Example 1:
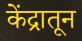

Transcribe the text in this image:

केंद्रातून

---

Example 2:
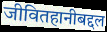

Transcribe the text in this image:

जीवितहानीबद्दल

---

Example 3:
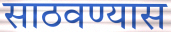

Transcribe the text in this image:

साठवण्यास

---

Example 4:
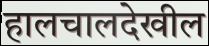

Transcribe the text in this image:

हालचालदेखील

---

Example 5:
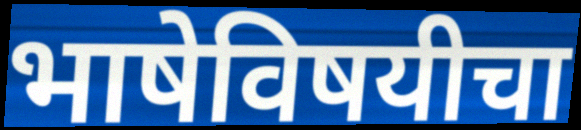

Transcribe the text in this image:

भाषेविषयीचा